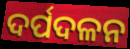
ଦର୍ପଦଳନ